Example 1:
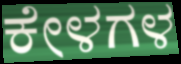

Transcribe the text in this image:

ಕೇಳಗಳ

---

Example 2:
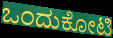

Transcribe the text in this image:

ಒಂದುಕೋಟಿ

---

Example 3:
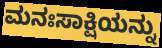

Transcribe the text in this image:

ಮನಃಸಾಕ್ಷಿಯನ್ನು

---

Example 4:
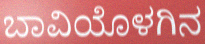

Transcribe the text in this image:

ಬಾವಿಯೊಳಗಿನ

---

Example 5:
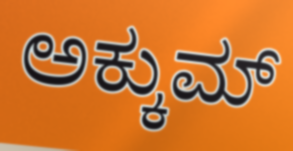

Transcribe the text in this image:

ಅಕ್ಕುಮ್